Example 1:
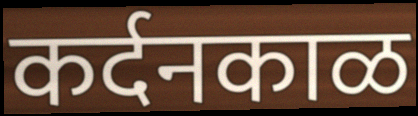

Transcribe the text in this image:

कर्दनकाळ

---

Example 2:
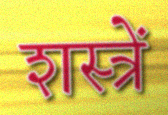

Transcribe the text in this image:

शस्त्रें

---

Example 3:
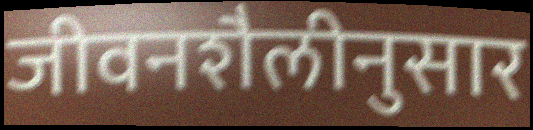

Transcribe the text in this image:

जीवनशैलीनुसार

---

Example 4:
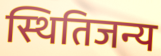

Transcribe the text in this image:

स्थितिजन्य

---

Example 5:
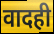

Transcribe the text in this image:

वादही